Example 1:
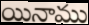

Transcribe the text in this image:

యినాము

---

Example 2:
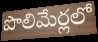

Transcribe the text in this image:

పొలిమేర్లలో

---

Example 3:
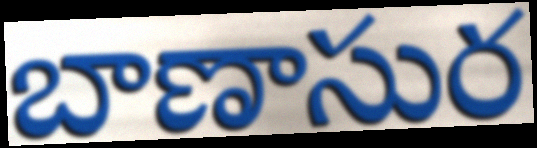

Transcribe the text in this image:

బాణాసుర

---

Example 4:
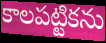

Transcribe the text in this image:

కాలపట్టికను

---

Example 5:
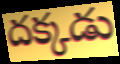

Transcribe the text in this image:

దక్కడు